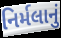
નિર્મલાનું